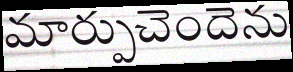
మార్పుచెందెను